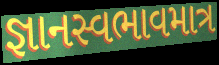
જ્ઞાનસ્વભાવમાત્ર